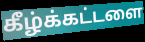
கீழ்க்கட்டளை